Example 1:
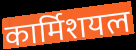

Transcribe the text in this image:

कार्मिशयल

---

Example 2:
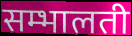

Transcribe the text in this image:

सम्भालती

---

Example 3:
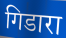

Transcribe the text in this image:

गिडारा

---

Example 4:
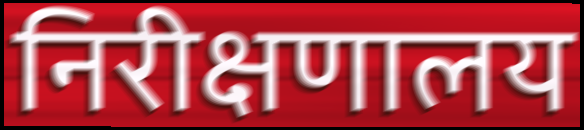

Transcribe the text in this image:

निरीक्षणालय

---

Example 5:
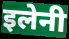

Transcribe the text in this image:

इलेनी